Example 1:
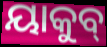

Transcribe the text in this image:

ୟାକୁବ୍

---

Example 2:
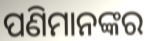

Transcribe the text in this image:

ପଣିମାନଙ୍କର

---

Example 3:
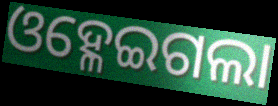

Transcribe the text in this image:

ଓହ୍ଳେଇଗଲା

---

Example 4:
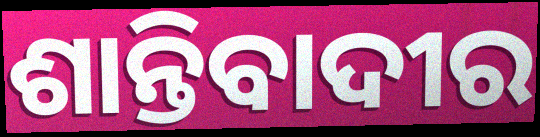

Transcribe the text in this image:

ଶାନ୍ତିବାଦୀର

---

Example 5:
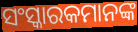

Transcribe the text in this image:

ସଂସ୍କାରକମାନଙ୍କ